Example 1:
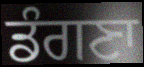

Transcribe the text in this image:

ਡੰਗਣਾ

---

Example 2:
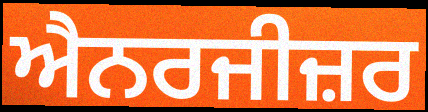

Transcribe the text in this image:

ਐਨਰਜੀਜ਼ਰ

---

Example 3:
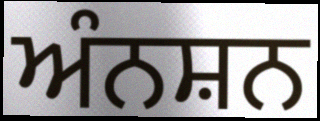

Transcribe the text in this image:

ਅੰਨਸ਼ਨ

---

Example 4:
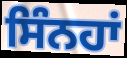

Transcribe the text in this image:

ਸਿੰਨਹਾਂ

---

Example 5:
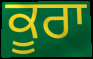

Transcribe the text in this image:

ਕੂਰਾ